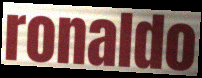
ronaldo